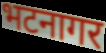
भटनागर